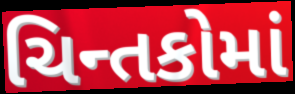
ચિન્તકોમાં